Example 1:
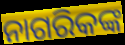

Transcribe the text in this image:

ନାଗରିକଙ୍କ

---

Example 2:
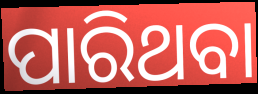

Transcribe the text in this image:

ପାରିଥବା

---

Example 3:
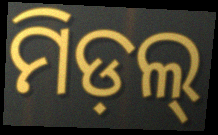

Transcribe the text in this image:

ମିଡ଼ଲ୍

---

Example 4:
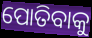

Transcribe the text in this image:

ପୋତିବାକୁ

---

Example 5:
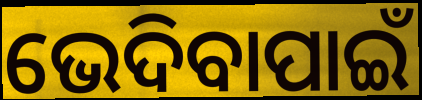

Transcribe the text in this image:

ଭେଦିବାପାଇଁ